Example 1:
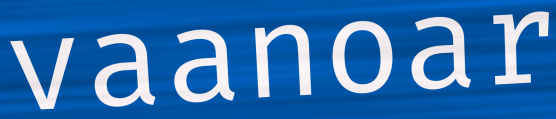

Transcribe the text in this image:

vaanoar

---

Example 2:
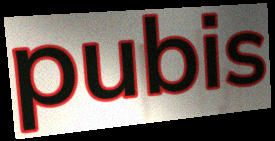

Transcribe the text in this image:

pubis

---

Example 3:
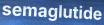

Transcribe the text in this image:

semaglutide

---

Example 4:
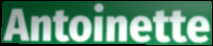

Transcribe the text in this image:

Antoinette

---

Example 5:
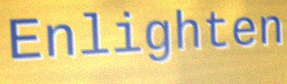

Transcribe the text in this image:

Enlighten